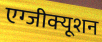
एग्जीक्यूशन